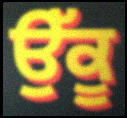
ਉੱਕੂ